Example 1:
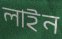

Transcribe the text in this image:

লাইন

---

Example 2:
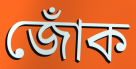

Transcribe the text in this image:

জোঁক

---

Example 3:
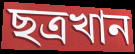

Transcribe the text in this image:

ছত্রখান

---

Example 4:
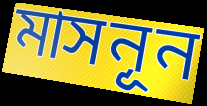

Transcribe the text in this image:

মাসনূন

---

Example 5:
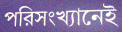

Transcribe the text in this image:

পরিসংখ্যানেই